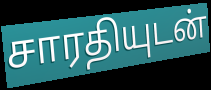
சாரதியுடன்